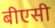
बीएसी